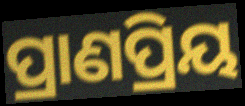
ପ୍ରାଣପ୍ରିୟ